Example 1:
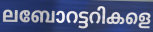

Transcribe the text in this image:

ലബോറട്ടറികളെ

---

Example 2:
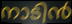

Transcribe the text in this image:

നാടിൻ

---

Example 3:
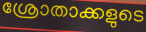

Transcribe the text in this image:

ശ്രോതാക്കളുടെ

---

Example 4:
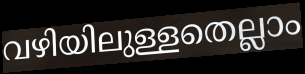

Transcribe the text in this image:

വഴിയിലുള്ളതെല്ലാം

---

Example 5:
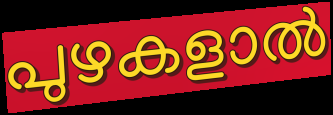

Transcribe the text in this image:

പുഴകളാൽ